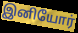
இனியோர்